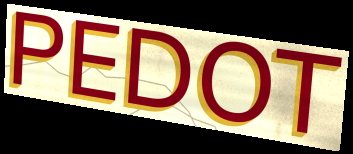
PEDOT